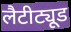
लैटीट्यूड